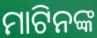
ମାଟିନଙ୍କ